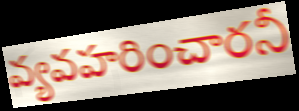
వ్యవహరించారనీ